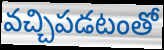
వచ్చిపడటంతో